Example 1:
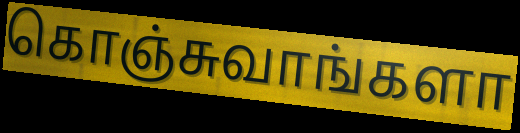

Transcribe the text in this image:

கொஞ்சுவாங்களா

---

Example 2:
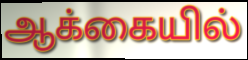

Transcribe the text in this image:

ஆக்கையில்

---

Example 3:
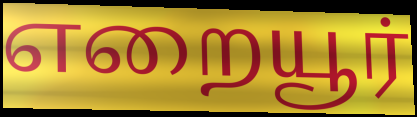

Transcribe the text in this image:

எறையூர்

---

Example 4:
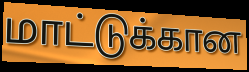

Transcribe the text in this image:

மாட்டுக்கான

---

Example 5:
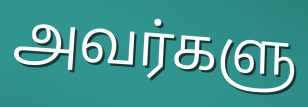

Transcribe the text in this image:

அவர்களு